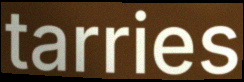
tarries